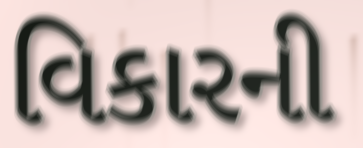
વિકારની